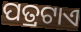
ପତ୍ରଟାଏ